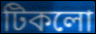
টিকলো